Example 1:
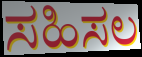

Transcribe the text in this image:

ಸಹಿಸಲ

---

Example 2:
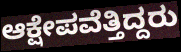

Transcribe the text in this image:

ಆಕ್ಷೇಪವೆತ್ತಿದ್ದರು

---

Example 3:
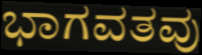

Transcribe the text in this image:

ಭಾಗವತವು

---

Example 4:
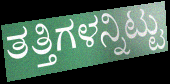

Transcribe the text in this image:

ತತ್ತಿಗಳನ್ನಿಟ್ಟು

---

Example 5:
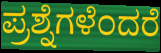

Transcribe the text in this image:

ಪ್ರಶ್ನೆಗಳೆಂದರೆ